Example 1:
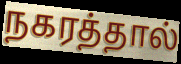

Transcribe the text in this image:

நகரத்தால்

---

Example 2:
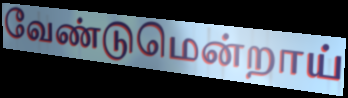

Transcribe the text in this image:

வேண்டுமென்றாய்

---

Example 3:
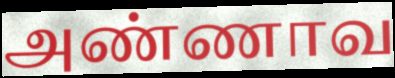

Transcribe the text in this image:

அண்ணாவ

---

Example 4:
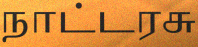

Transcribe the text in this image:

நாட்டரசு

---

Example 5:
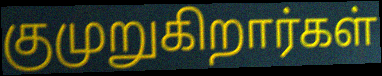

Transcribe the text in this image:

குமுறுகிறார்கள்